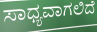
ಸಾಧ್ಯವಾಗಲಿದೆ